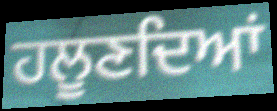
ਹਲੂਣਦਿਆਂ